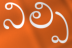
నిల్పి